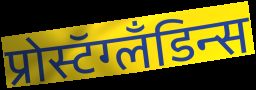
प्रोस्टॅग्लॅंडिन्स